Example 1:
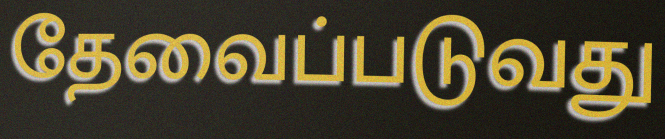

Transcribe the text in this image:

தேவைப்படுவது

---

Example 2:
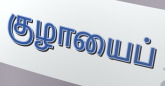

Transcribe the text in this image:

குழாயைப்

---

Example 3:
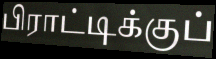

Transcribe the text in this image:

பிராட்டிக்குப்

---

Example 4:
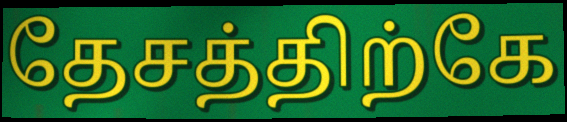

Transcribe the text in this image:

தேசத்திற்கே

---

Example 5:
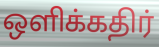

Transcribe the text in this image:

ஒளிக்கதிர்